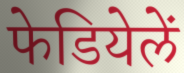
फेडियेलें